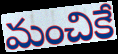
మంచికే